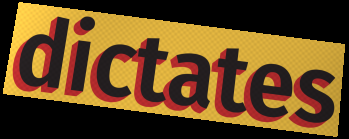
dictates